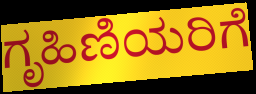
ಗೃಹಿಣಿಯರಿಗೆ